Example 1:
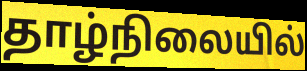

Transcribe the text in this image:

தாழ்நிலையில்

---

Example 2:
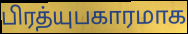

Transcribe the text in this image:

பிரத்யுபகாரமாக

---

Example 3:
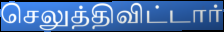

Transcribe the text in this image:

செலுத்திவிட்டார்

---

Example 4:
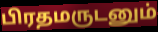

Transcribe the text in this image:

பிரதமருடனும்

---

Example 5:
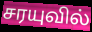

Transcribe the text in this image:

சரயுவில்